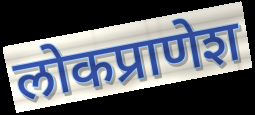
लोकप्राणेश